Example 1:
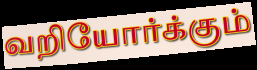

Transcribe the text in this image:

வறியோர்க்கும்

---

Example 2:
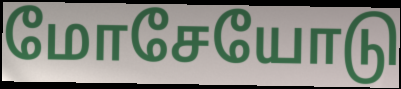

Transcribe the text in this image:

மோசேயோடு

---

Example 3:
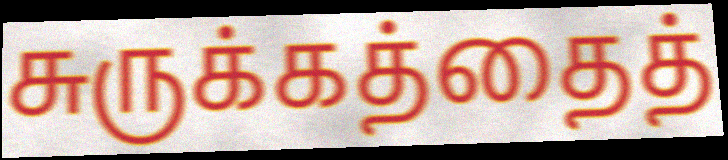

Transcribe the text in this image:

சுருக்கத்தைத்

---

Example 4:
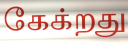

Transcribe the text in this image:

கேக்றது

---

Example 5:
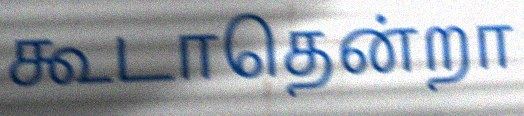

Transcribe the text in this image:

கூடாதென்றா